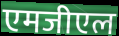
एमजीएल